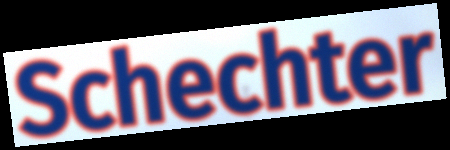
Schechter